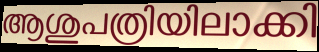
ആശുപത്രിയിലാക്കി